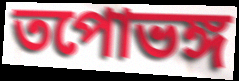
তপোভঙ্গ